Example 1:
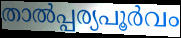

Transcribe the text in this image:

താൽപ്പര്യപൂർവം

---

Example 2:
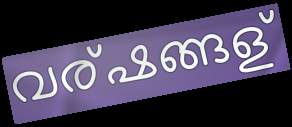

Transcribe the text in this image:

വര്ഷങ്ങള്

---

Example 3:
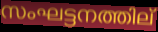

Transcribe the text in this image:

സംഘട്ടനത്തില്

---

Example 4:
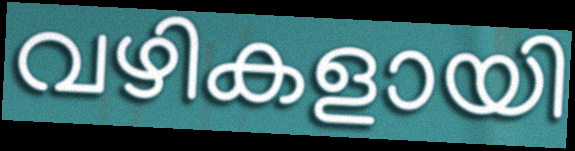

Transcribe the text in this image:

വഴികളായി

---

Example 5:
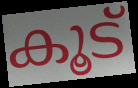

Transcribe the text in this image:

കൂട്